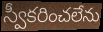
స్వీకరించలేను